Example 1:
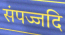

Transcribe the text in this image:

संपज्जदि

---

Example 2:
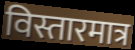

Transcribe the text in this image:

विस्तारमात्र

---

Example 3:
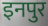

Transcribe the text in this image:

इनपुर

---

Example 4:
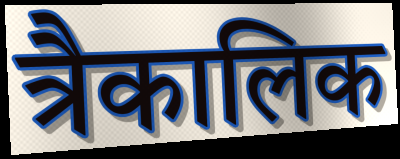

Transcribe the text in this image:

त्रैकालिक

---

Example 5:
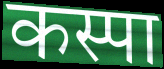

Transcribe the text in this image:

कस्पा